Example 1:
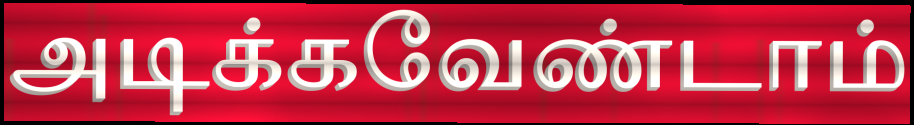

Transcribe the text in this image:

அடிக்கவேண்டாம்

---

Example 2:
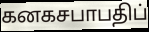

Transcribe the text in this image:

கனகசபாபதிப்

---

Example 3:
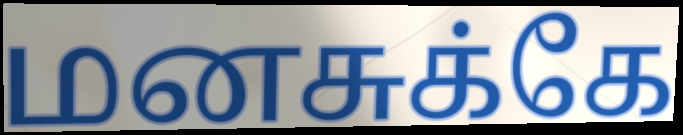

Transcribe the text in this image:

மனசுக்கே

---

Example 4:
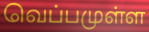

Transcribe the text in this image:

வெப்பமுள்ள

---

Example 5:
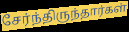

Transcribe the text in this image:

சேர்ந்திருந்தார்கள்